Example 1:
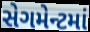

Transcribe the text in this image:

સેગમેન્ટમાં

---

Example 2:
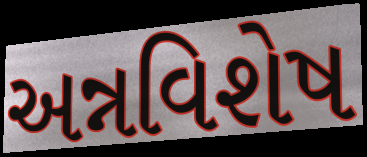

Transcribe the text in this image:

અન્નવિશેષ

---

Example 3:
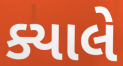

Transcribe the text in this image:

ક્યાલે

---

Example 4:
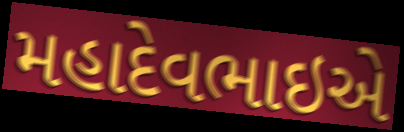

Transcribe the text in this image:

મહાદેવભાઇએ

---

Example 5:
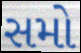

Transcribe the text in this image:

સમો